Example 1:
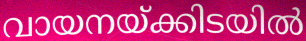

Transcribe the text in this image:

വായനയ്ക്കിടയിൽ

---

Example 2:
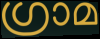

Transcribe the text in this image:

ഗ്രാമ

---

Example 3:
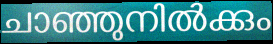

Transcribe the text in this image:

ചാഞ്ഞുനിൽക്കും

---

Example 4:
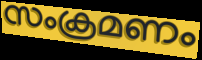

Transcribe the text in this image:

സംക്രമണം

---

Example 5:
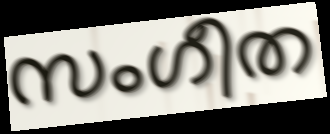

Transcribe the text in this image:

സംഗീത